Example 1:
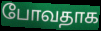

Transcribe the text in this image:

போவதாக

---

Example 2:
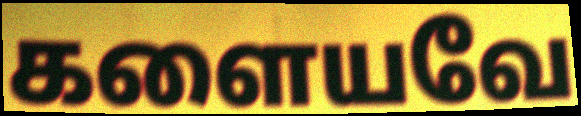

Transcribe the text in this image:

களையவே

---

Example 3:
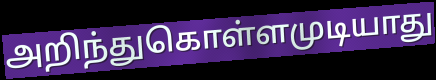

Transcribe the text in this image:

அறிந்துகொள்ளமுடியாது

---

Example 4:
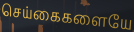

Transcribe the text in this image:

செய்கைகளையே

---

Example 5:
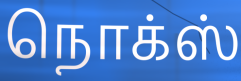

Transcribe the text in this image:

நொக்ஸ்